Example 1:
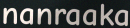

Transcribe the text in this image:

nanraaka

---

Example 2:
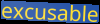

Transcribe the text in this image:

excusable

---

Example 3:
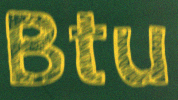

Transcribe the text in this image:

Btu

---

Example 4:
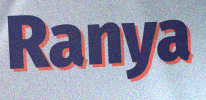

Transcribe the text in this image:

Ranya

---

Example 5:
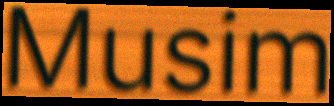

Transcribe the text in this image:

Musim